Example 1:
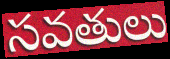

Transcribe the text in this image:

సవతులు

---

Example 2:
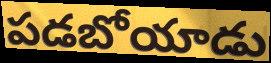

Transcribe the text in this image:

పడబోయాడు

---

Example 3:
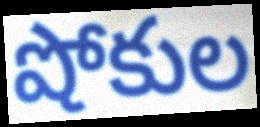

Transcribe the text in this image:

షోకుల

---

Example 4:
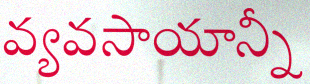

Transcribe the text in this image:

వ్యవసాయాన్నీ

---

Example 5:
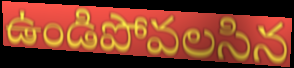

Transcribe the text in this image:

ఉండిపోవలసిన